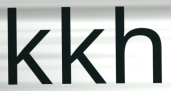
kkh